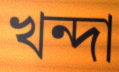
খন্দা